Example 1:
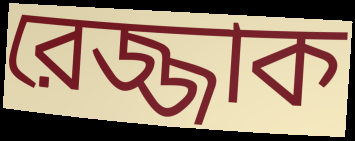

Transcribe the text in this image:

রেজ্জাক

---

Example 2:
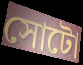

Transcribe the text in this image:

সোটো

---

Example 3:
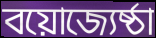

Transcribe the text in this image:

বয়োজ্যেষ্ঠা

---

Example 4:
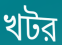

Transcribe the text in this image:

খটর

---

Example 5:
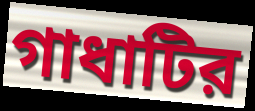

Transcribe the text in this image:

গাধাটির